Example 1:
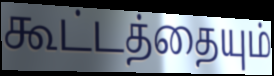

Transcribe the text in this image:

கூட்டத்தையும்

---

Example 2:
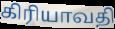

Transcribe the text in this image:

கிரியாவதி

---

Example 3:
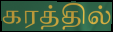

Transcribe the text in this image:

கரத்தில்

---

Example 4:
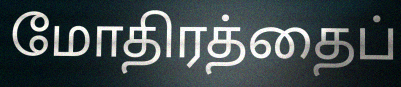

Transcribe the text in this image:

மோதிரத்தைப்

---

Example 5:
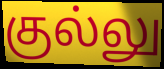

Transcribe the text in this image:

குல்லு